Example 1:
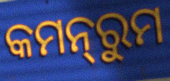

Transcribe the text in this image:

କମନ୍‌ରୁମ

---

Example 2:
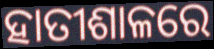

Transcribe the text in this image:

ହାତୀଶାଳରେ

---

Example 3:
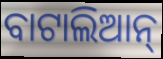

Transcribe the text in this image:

ବାଟାଲିଆନ୍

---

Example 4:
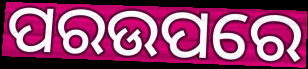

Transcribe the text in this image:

ପରଉପରେ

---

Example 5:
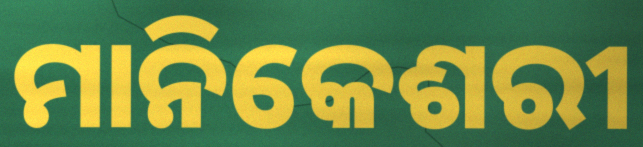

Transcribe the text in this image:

ମାନିକେଶରୀ